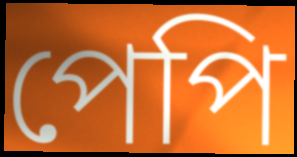
পেপি